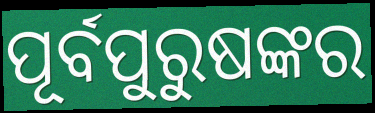
ପୂର୍ବପୁରୁଷଙ୍କର